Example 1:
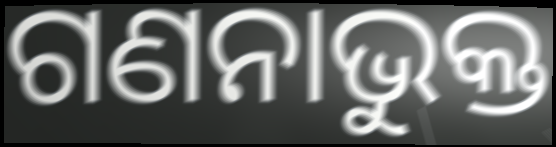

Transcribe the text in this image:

ଗଣନାଭୁକ୍ତ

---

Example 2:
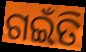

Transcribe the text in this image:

ଗଇଁତି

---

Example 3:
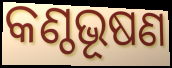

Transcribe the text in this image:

କଣ୍ଠଭୂଷଣ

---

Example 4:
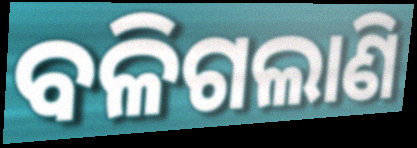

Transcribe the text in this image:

ବଳିଗଲାଣି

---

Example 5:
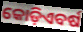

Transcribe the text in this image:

କୋଡ଼ିଏବର୍ଷ